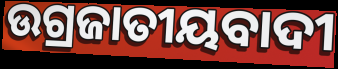
ଉଗ୍ରଜାତୀୟବାଦୀ